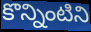
కొన్నింటిని